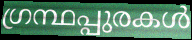
ഗ്രന്ഥപ്പുരകൾ